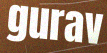
gurav